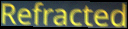
Refracted